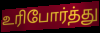
உரிபோர்த்து